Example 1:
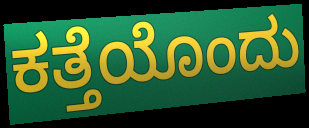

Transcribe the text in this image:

ಕತ್ತೆಯೊಂದು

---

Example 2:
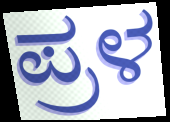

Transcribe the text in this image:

ಪ್ರಳ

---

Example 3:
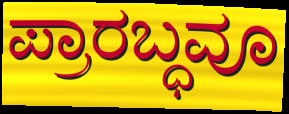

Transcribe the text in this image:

ಪ್ರಾರಬ್ಧವೂ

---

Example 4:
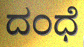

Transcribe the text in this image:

ದಂಧೆ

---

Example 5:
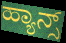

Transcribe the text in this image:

ಹ್ಯಾನ್ಸ್